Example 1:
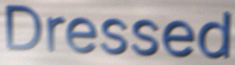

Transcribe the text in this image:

Dressed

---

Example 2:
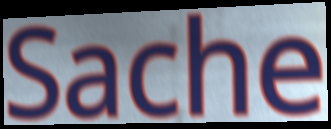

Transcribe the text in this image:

Sache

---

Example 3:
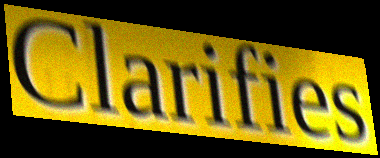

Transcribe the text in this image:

Clarifies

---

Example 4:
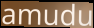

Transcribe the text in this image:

amudu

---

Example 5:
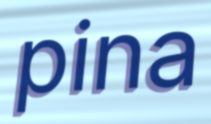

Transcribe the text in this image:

pina